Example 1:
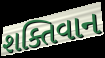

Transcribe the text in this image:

શક્તિવાન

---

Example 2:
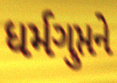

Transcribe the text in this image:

ધર્મગુપ્તને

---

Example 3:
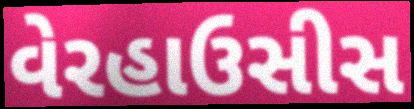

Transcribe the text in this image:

વેરહાઉસીસ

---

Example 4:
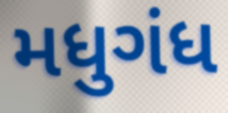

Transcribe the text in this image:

મધુગંધ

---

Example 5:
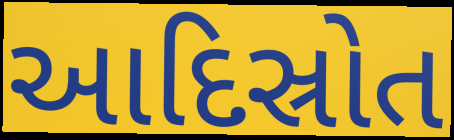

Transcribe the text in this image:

આદિસ્રોત